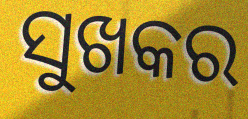
ସୁଖକର